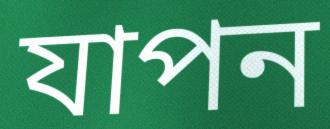
যাপন